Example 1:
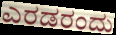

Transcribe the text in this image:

ಎರಡರಂದು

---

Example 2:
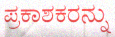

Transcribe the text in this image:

ಪ್ರಕಾಶಕರನ್ನು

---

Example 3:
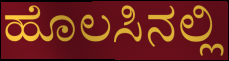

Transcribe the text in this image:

ಹೊಲಸಿನಲ್ಲಿ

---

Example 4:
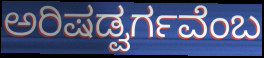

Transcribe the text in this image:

ಅರಿಷಡ್ವರ್ಗವೆಂಬ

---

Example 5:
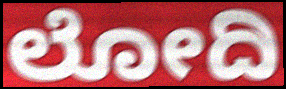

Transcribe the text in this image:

ಲೋದಿ